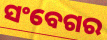
ସଂବେଗର